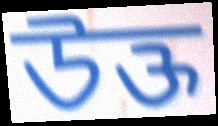
উক্ত